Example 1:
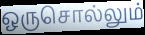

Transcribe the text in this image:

ஒருசொல்லும்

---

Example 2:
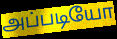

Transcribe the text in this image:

அப்படியோ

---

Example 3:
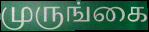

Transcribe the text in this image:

முருங்கை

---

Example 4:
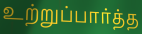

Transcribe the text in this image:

உற்றுப்பார்த்த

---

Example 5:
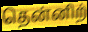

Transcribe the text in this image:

தென்னிற்